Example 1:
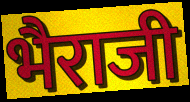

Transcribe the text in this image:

भैराजी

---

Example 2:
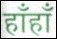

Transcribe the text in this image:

हाँहाँ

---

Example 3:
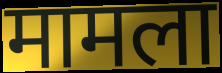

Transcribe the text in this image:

मामला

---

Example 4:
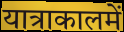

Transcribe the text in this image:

यात्राकालमें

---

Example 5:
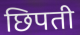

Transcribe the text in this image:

छिपती